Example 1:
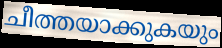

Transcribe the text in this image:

ചീത്തയാക്കുകയും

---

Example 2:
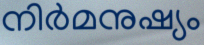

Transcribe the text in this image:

നിർമനുഷ്യം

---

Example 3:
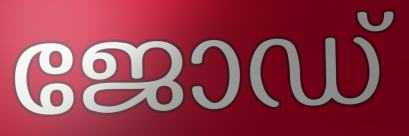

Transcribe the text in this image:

ജോഡ്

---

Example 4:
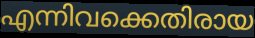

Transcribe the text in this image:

എന്നിവക്കെതിരായ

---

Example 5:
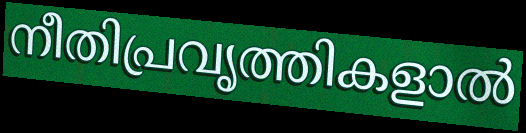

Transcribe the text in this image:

നീതിപ്രവൃത്തികളാൽ